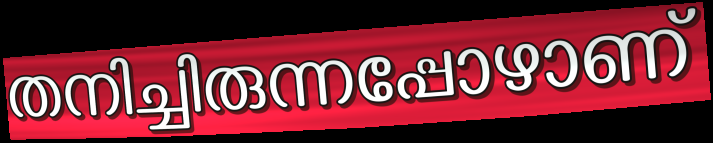
തനിച്ചിരുന്നപ്പോഴാണ്